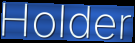
Holder